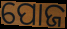
ପୋଜ